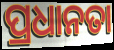
ପ୍ରଧାନତା